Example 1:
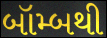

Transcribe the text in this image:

બૉમ્બથી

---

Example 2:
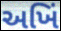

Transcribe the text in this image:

અખિં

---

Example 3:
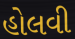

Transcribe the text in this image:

હોલવી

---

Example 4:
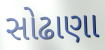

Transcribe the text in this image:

સોઢાણા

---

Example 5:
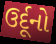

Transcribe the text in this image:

ઉર્દૂનો